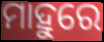
ମାହୁରେ